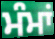
ਮੰਮਾਂ